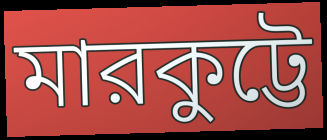
মারকুট্টে